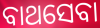
ବାଥସେବା